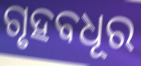
ଗୃହବଧୂର